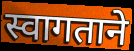
स्वागताने